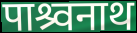
पाश्र्वनाथ